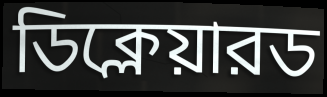
ডিক্লেয়ারড